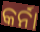
କର୍ନା